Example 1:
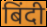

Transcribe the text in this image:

बिंदी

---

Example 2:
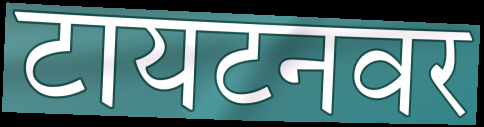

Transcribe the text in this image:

टायटनवर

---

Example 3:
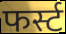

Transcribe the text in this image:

फर्स्ट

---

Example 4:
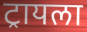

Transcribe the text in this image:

ट्रायला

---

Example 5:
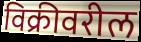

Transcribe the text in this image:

विक्रीवरील